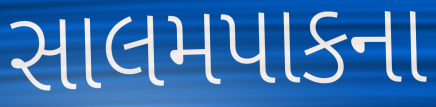
સાલમપાકના